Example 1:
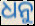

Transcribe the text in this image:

ଧନୁ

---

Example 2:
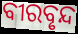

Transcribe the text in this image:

ବୀରବୃନ୍ଦ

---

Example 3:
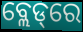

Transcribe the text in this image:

ବ୍ଲେଡ୍‌ରେ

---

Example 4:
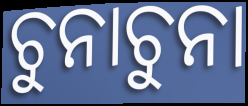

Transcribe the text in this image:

ଚୁନାଚୁନା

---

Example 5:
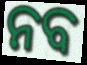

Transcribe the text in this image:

ନବ